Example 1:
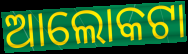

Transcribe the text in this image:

ଆଲୋକଟା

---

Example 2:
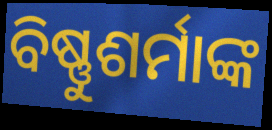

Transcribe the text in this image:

ବିଷ୍ଣୁଶର୍ମାଙ୍କ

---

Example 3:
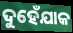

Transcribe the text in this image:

ଦୁହେଁଯାକ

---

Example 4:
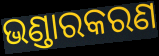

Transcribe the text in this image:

ଭଣ୍ଡାରକରଣ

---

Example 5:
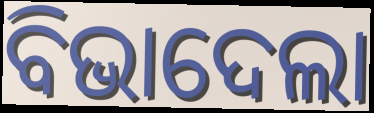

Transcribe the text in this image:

ବିଭାଦେଲା